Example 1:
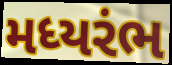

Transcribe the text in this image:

મધ્યરંભ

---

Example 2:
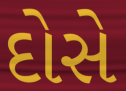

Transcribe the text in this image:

દોસે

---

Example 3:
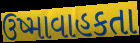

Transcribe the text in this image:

ઉષ્માવાહકતા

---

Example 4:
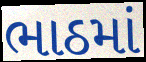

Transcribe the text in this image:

ભાઠમાં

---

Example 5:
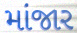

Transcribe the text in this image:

માંજાર